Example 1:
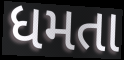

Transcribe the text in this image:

ધમતા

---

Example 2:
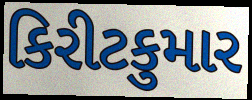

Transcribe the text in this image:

કિરીટકુમાર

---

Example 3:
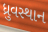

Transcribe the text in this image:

ધ્રુવસ્થાન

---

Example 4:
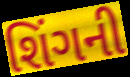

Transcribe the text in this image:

શિંગની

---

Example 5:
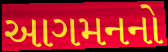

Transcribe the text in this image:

આગમનનો